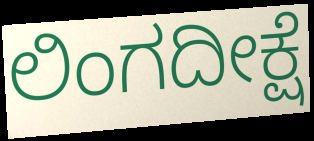
ಲಿಂಗದೀಕ್ಷೆ